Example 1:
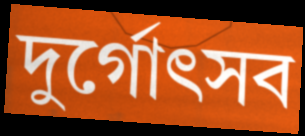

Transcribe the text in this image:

দুর্গোৎসব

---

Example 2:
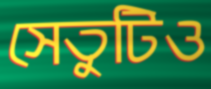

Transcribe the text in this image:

সেতুটিও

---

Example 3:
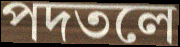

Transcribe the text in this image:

পদতলে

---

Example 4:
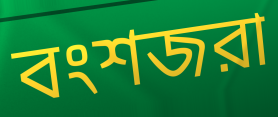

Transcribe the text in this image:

বংশজরা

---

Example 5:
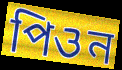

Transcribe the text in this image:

পিওন